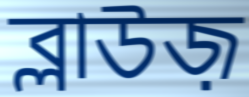
ব্লাউজ়